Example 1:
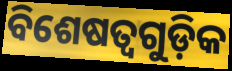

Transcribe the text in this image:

ବିଶେଷତ୍ୱଗୁଡ଼ିକ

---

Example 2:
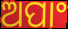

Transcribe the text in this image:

ଅପାଂ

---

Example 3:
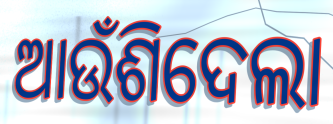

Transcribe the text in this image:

ଆଉଁଶିଦେଲା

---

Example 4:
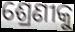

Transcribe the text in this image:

ଶ୍ରେଣୀକୁ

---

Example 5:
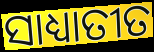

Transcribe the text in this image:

ସାଧ୍ୟାତୀତ